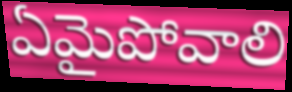
ఏమైపోవాలి